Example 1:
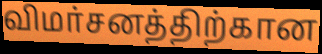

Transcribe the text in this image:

விமர்சனத்திற்கான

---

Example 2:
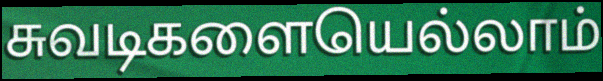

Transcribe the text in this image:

சுவடிகளையெல்லாம்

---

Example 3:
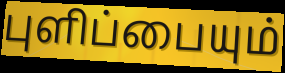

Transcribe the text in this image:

புளிப்பையும்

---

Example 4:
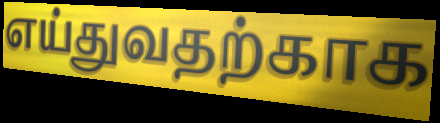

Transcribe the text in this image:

எய்துவதற்காக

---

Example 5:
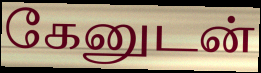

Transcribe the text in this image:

கேனுடன்